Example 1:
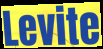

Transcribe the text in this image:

Levite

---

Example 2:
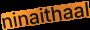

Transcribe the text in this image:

ninaithaal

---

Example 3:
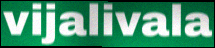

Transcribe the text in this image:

vijalivala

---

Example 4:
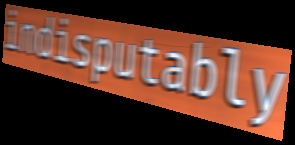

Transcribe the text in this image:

indisputably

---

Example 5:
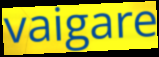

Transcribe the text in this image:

vaigare